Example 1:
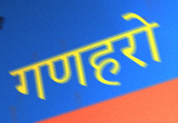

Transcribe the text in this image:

गणहरो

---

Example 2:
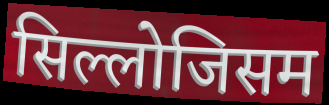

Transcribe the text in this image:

सिल्लोजिसम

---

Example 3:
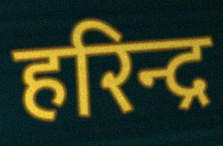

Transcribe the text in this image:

हरिन्द्र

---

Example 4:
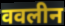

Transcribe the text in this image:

ववलीन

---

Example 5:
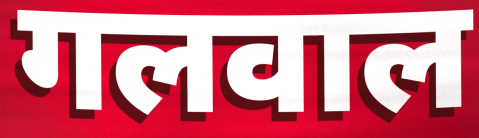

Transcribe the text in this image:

गलवाल